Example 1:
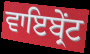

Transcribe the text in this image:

ਵਾਇਬ੍ਰੇਂਟ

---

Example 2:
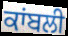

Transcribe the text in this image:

ਕਾਂਬਲੀ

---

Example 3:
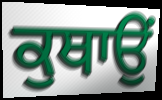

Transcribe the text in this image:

ਕੁਥਾਉਂ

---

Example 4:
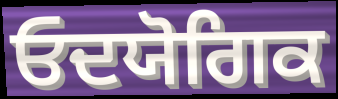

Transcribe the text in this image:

ਓਦਯੋਗਿਕ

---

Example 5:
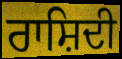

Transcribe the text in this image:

ਰਾਸ਼ਿਦੀ